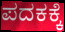
ಪದಕಕ್ಕೆ